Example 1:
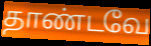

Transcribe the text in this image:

தாண்டவே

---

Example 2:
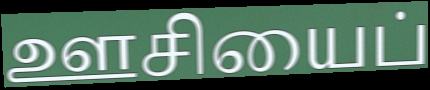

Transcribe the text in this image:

ஊசியைப்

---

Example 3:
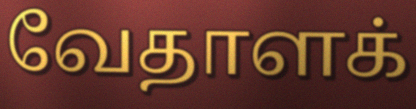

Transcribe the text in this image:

வேதாளக்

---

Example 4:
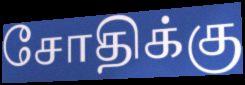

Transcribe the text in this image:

சோதிக்கு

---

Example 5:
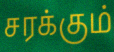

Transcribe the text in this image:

சரக்கும்